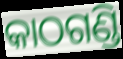
କାଠଗଣ୍ଡି